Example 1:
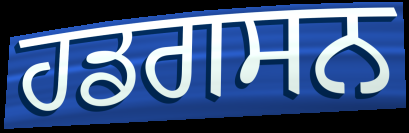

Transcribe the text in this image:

ਹਡਗਸਨ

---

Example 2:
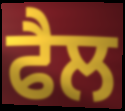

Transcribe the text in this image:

ਫੈਲ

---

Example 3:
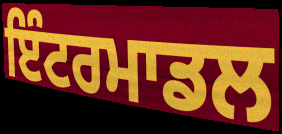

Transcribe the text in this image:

ਇੰਟਰਮਾਡਲ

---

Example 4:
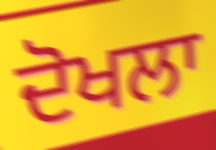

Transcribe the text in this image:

ਦੋਖਲਾ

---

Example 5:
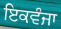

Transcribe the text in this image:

ਇਕਵੰਜਾ